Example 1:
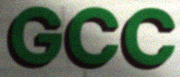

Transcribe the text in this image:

GCC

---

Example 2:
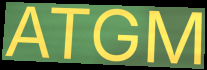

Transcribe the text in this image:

ATGM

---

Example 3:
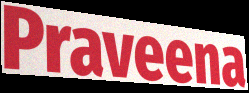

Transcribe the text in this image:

Praveena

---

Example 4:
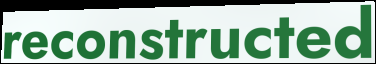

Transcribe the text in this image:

reconstructed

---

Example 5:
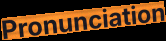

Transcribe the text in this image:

Pronunciation